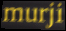
murji